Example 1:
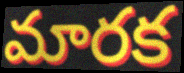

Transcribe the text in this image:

మారక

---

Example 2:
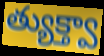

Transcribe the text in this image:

త్యుక్త్వా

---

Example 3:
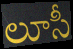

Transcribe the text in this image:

లూసీ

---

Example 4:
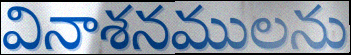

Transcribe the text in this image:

వినాశనములను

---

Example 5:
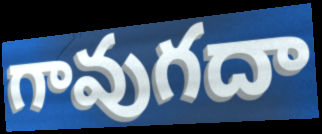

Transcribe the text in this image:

గావుగదా